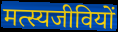
मत्स्यजीवियों